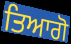
ਤਿਆਗੋ